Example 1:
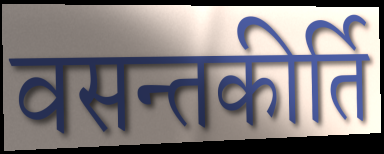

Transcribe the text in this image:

वसन्तकीर्ति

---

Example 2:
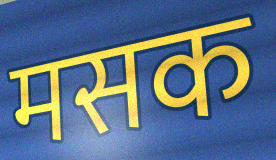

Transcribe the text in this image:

मसक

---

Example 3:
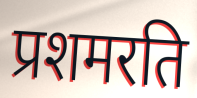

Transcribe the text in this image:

प्रशमरति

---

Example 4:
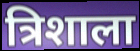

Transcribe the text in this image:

त्रिशाला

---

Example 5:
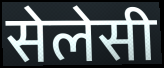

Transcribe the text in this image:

सेलेसी